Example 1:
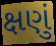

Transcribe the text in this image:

ક્ષણું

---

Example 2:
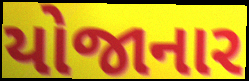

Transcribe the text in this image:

યોજાનાર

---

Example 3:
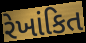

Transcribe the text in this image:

રેખાંકિત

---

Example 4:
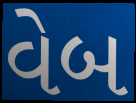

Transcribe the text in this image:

વેબ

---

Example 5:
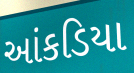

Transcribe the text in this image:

આંકડિયા